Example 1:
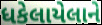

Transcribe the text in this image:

ધકેલાયેલાને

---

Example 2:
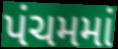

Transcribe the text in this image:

પંચમમાં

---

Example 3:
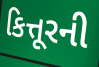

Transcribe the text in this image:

કિત્તૂરની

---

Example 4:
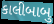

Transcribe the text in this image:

કાલીબાબુ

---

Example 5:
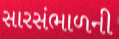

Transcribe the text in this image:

સારસંભાળની